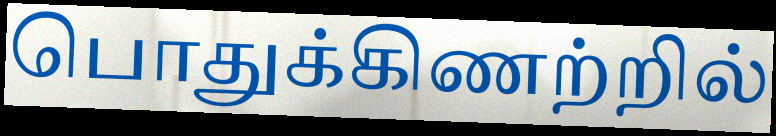
பொதுக்கிணற்றில்